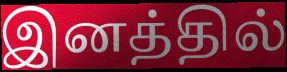
இனத்தில்